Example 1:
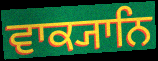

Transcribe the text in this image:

ਵਾਕ੍ਯਾਨਿ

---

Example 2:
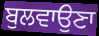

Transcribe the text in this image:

ਬੁਲਵਾਉਣਾ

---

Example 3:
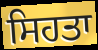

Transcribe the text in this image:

ਸਿਹਤਾ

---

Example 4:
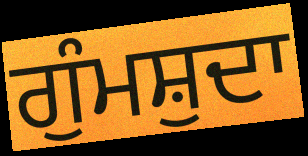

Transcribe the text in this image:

ਗੁੰਮਸ਼ੁਦਾ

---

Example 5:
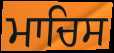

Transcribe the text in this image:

ਮਾਚਿਸ